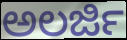
ಅಲರ್ಜಿ